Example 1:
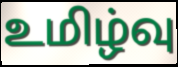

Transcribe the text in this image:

உமிழ்வு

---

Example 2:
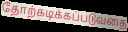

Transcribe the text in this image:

தோற்கடிக்கப்படுவதை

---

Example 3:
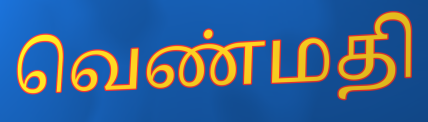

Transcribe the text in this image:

வெண்மதி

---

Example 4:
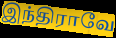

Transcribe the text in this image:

இந்திராவே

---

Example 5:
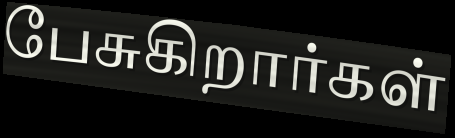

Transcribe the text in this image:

பேசுகிறார்கள்